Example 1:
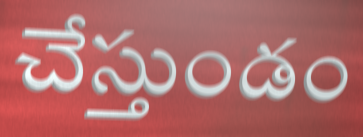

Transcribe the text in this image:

చేస్తుండం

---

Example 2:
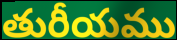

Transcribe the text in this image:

తురీయము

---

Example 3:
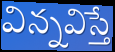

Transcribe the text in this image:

విన్నవిస్తే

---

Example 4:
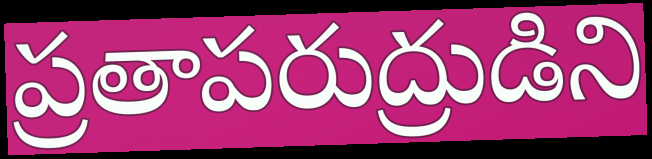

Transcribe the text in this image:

ప్రతాపరుద్రుడిని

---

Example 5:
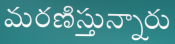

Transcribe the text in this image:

మరణిస్తున్నారు